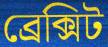
ব্রেক্সিট